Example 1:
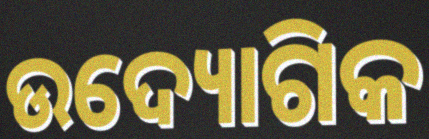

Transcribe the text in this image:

ଉଦ୍ୟୋଗିକ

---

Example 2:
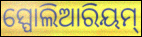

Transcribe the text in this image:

ସ୍ପୋଲିଆରିୟମ୍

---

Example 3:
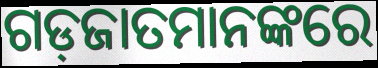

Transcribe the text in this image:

ଗଡ଼ଜାତମାନଙ୍କରେ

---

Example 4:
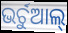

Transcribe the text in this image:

ଭର୍ଚୁଆଲ୍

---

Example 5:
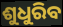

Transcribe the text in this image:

ଶୁଧୁରିବ